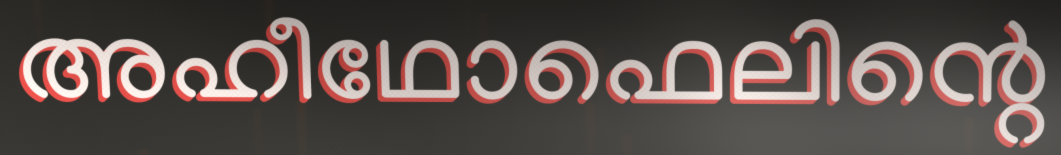
അഹീഥോഫെലിന്റെ